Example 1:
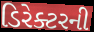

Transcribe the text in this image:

ડિરેક્ટરની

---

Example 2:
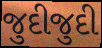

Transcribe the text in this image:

જુદીજુદી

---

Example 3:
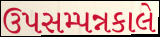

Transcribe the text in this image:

ઉપસમ્પન્નકાલે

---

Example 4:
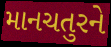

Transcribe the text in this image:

માનચતુરને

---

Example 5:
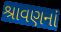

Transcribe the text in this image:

શ્રાવણનાં